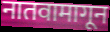
नातवामागून